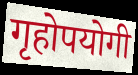
गृहोपयोगी